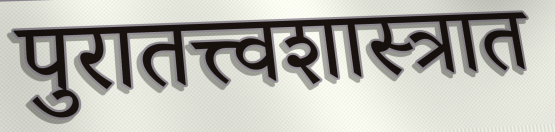
पुरातत्त्वशास्त्रात